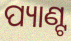
ପ୍ୟାଣ୍ଟ